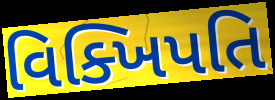
વિક્ખિપતિ